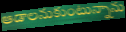
ఆడాలనుకుంటున్నాను